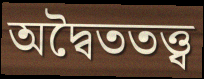
অদ্বৈততত্ত্ব